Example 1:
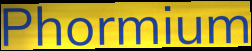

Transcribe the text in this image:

Phormium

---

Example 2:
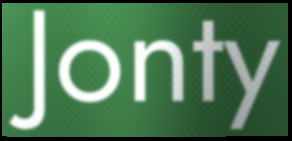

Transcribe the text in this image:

Jonty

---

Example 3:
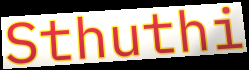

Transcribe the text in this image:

Sthuthi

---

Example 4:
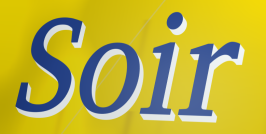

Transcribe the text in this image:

Soir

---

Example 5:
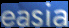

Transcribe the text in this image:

easia